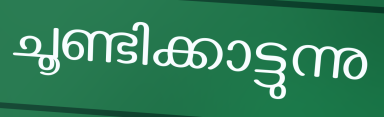
ചൂണ്ടിക്കാട്ടുന്നു